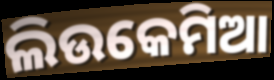
ଲିଉକେମିଆ